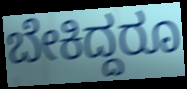
ಬೇಕಿದ್ದರೂ